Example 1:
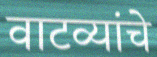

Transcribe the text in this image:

वाटव्यांचे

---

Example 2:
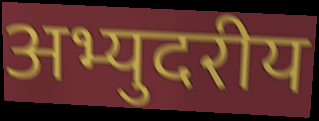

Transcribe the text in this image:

अभ्युदरीय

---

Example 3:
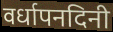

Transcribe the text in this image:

वर्धापनदिनी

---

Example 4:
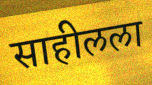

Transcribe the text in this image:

साहीलला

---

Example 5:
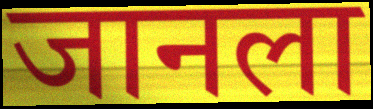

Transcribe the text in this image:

जानला